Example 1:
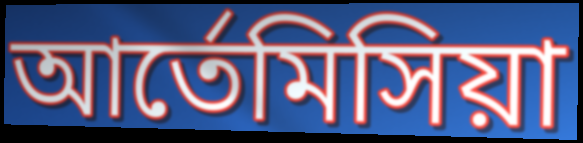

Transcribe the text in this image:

আর্তেমিসিয়া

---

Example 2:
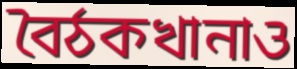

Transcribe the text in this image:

বৈঠকখানাও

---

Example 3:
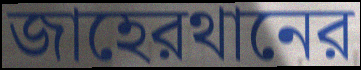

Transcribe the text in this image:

জাহেরথানের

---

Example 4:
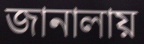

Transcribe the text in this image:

জানালায়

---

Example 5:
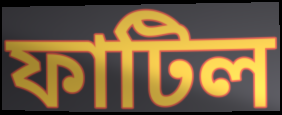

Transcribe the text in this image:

ফাটিল